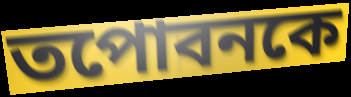
তপোবনকে